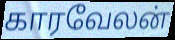
காரவேலன்